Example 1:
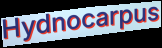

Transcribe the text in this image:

Hydnocarpus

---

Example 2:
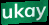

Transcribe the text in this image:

ukay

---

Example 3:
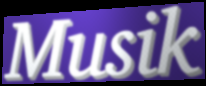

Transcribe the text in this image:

Musik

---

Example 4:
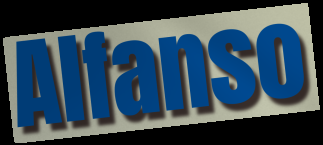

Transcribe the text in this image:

Alfanso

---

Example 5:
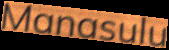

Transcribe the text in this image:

Manasulu